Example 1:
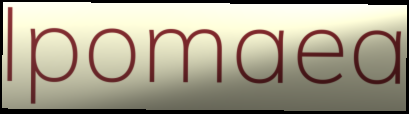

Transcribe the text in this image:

Ipomaea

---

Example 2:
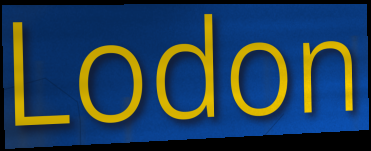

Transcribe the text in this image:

Lodon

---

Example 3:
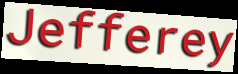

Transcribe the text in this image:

Jefferey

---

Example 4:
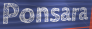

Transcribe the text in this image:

Ponsara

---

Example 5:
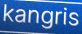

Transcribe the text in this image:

kangris